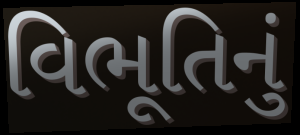
વિભૂતિનું